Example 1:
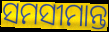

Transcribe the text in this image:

ସମସୀମାନ୍ତ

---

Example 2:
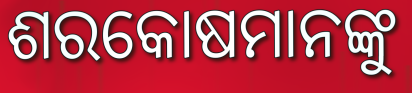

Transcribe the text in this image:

ଶରକୋଷମାନଙ୍କୁ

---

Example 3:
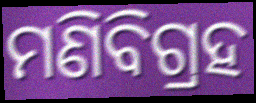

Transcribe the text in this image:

ମଣିବିଗ୍ରହ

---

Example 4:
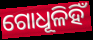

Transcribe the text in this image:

ଗୋଧୂଳିହିଁ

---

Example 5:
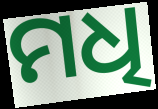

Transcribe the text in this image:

ମଧି